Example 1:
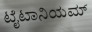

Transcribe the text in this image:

ಟೈಟಾನಿಯಮ್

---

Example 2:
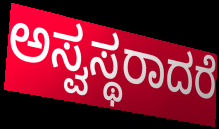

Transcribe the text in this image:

ಅಸ್ವಸ್ಥರಾದರೆ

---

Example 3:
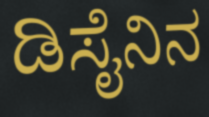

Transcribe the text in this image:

ಡಿಸೈನಿನ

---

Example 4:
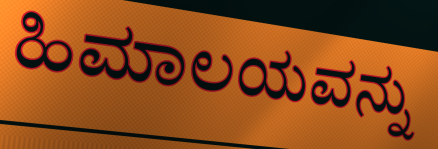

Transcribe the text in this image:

ಹಿಮಾಲಯವನ್ನು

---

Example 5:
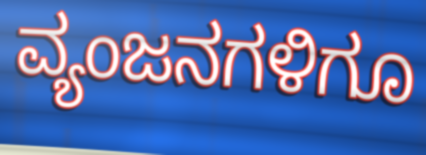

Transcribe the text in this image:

ವ್ಯಂಜನಗಳಿಗೂ